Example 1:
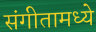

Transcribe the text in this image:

संगीतामध्ये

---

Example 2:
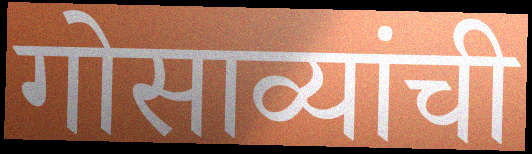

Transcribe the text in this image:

गोसाव्यांची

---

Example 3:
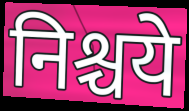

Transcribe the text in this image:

निश्चये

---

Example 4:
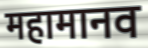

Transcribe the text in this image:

महामानव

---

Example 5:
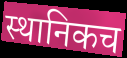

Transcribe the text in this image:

स्थानिकच